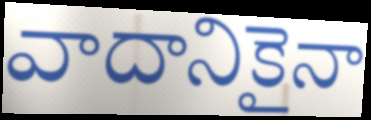
వాదానికైనా